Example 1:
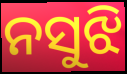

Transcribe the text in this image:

ନସୁଝି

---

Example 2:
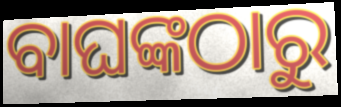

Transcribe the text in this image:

ବାଘଙ୍କଠାରୁ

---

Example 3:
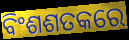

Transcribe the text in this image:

ବିଂଶଶତକରେ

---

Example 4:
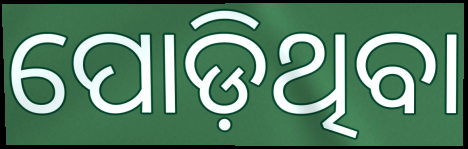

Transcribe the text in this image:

ପୋଡ଼ିଥିବା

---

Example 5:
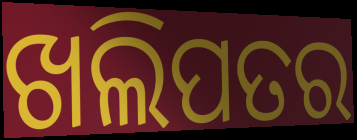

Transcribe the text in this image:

ଖଲିପତର